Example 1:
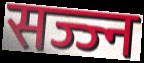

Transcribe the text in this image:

सज्ज्न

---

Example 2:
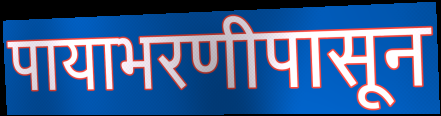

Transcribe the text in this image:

पायाभरणीपासून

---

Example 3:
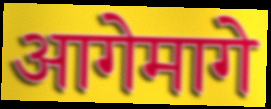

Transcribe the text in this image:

आगेमागे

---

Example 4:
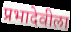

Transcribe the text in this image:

प्रभादेवीला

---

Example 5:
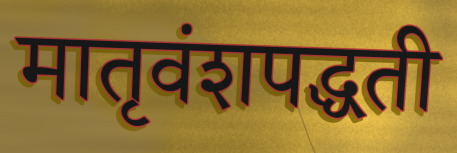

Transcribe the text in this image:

मातृवंशपद्धती